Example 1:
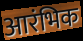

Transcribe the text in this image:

आरंभिक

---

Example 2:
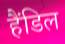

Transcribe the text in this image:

हैंडिल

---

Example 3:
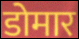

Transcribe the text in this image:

डोमार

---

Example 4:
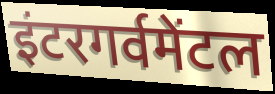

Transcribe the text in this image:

इंटरगर्वमेंटल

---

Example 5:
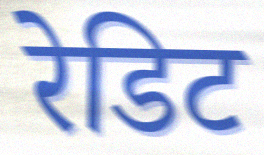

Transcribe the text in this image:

रेडिट